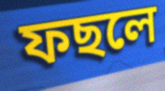
ফছলে